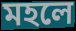
মহলে